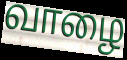
வாழை